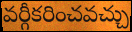
వర్గీకరించవచ్చు